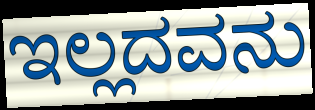
ಇಲ್ಲದವನು